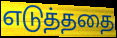
எடுத்ததை